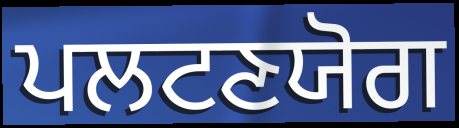
ਪਲਟਣਯੋਗ